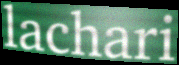
lachari